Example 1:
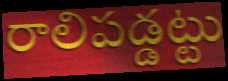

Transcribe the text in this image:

రాలిపడ్డట్టు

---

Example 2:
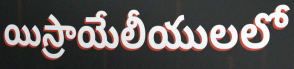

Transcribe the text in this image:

యిస్రాయేలీయులలో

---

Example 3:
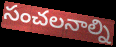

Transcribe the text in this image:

సంచలనాల్ని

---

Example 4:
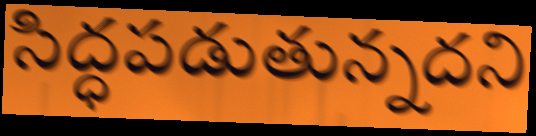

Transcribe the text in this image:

సిద్ధపడుతున్నదని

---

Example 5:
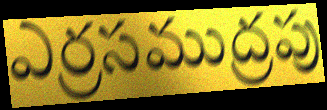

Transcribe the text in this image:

ఎర్రసముద్రపు